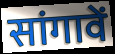
सांगावें